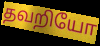
தவறியோ